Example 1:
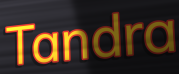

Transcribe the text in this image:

Tandra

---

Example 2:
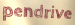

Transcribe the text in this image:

pendrive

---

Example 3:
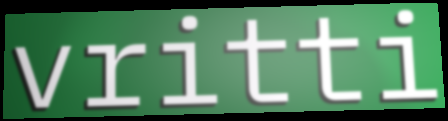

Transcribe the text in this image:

vritti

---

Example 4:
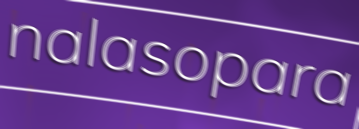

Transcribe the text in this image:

nalasopara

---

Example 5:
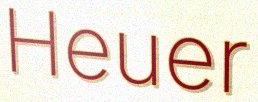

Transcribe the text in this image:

Heuer